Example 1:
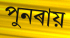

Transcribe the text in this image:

পুনৰায়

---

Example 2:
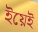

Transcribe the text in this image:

ইয়েই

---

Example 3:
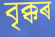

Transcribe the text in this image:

বৃক্কৰ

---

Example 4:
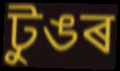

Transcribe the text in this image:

টুঙৰ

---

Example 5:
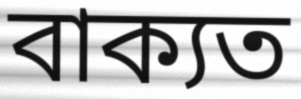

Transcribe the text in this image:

বাক্যত